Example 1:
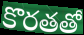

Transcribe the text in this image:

కొరతతో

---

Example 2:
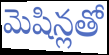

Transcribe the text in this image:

మెషిన్లతో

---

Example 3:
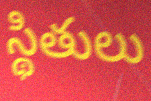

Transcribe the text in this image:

స్థితులు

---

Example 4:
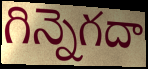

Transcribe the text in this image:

గిన్నెగదా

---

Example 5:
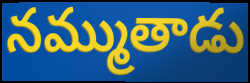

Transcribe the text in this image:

నమ్ముతాడు